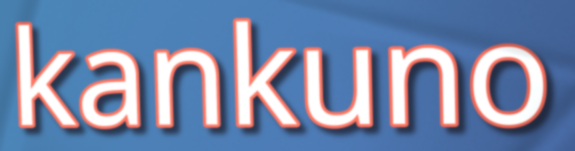
kankuno